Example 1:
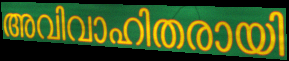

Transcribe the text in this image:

അവിവാഹിതരായി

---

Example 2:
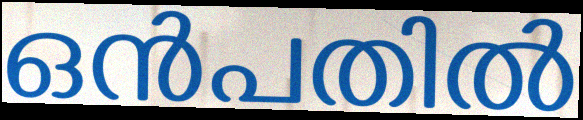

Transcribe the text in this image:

ഒൻപതിൽ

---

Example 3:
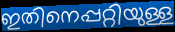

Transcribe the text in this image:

ഇതിനെപ്പറ്റിയുള്ള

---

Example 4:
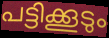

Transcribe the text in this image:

പട്ടിക്കൂടും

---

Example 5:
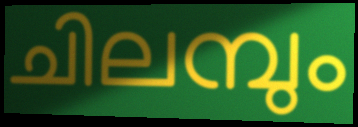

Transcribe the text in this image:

ചിലമ്പും